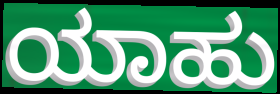
ಯಾಹು